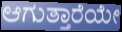
ಆಗುತ್ತಾರೆಯೇ